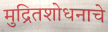
मुद्रितशोधनाचे